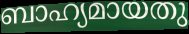
ബാഹ്യമായതു